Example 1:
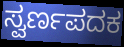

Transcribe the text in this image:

ಸ್ವರ್ಣಪದಕ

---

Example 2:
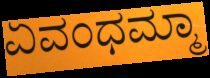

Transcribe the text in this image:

ಏವಂಧಮ್ಮಾ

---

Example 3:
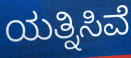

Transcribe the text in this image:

ಯತ್ನಿಸಿವೆ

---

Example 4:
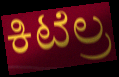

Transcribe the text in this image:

ಕಿಟೆಲ್ರ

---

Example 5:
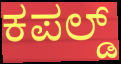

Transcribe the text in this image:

ಕಪಲ್ಡ್